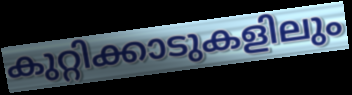
കുറ്റിക്കാടുകളിലും